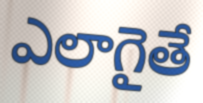
ఎలాగైతే